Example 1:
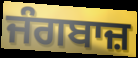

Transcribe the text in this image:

ਜੰਗਬਾਜ਼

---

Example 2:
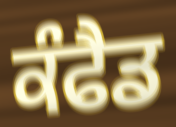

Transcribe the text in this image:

ਕੰਫੈਡ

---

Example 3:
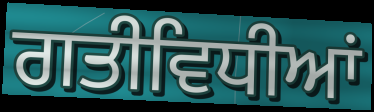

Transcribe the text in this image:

ਗਤੀਵਿਧੀਆਂ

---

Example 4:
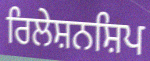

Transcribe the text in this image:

ਰਿਲੇਸ਼ਨਸ਼ਿਪ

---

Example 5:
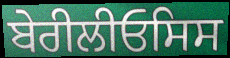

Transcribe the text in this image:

ਬੇਰੀਲੀਓਸਿਸ